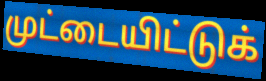
முட்டையிட்டுக்